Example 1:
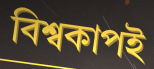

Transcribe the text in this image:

বিশ্বকাপই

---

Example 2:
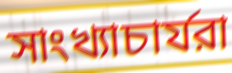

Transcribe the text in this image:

সাংখ্যাচার্যরা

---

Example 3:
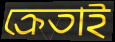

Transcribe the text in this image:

ক্রেতাই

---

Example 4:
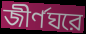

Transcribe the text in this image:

জীর্ণঘরে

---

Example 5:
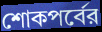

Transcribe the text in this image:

শোকপর্বের